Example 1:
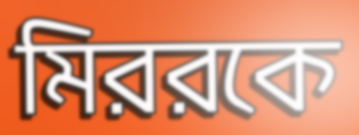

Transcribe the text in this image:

মিররকে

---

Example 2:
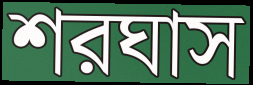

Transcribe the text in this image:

শরঘাস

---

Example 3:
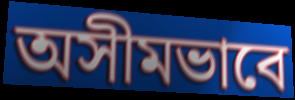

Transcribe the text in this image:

অসীমভাবে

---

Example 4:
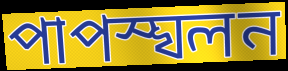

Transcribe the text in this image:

পাপস্খলন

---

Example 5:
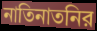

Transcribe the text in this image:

নাতিনাতনির